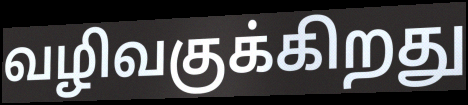
வழிவகுக்கிறது